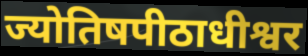
ज्योतिषपीठाधीश्वर